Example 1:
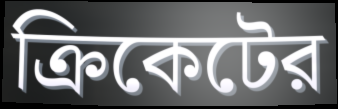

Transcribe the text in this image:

ক্রিকেটের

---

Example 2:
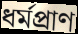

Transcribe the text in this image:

ধর্মপ্রাণ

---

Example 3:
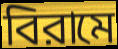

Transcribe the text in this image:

বিরামে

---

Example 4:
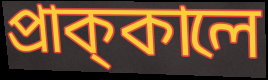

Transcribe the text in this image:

প্রাক্‌কালে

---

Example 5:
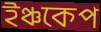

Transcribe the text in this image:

ইঞ্চকেপ